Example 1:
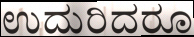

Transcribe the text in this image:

ಉದುರಿದರೂ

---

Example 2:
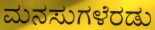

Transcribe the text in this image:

ಮನಸುಗಳೆರಡು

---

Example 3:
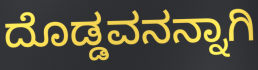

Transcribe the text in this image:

ದೊಡ್ಡವನನ್ನಾಗಿ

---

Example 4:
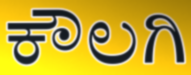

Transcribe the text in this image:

ಕೌಲಗಿ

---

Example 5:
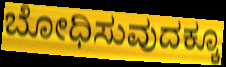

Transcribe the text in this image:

ಬೋಧಿಸುವುದಕ್ಕೂ